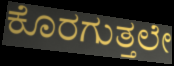
ಕೊರಗುತ್ತಲೇ